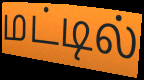
மட்டில்